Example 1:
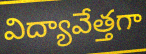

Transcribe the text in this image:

విద్యావేత్తగా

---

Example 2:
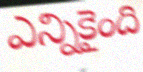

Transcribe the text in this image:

ఎన్నికైంది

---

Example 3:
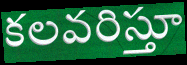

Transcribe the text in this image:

కలవరిస్తూ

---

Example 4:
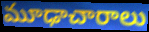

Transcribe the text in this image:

మూఢాచారాలు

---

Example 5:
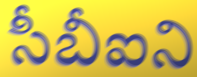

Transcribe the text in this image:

సీబీఐని